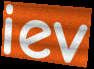
iev